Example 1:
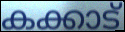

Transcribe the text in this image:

കക്കാട്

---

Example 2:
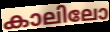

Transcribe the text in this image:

കാലിലോ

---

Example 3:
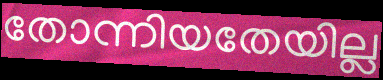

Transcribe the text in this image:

തോന്നിയതേയില്ല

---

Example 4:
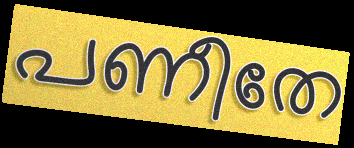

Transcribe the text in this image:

പണീതേ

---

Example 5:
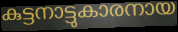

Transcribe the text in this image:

കുട്ടനാട്ടുകാരനായ